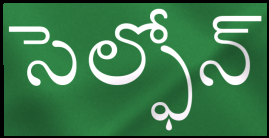
సెల్ఫోన్